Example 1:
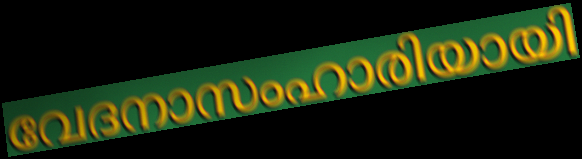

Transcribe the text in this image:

വേദനാസംഹാരിയായി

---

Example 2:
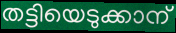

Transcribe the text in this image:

തട്ടിയെടുക്കാന്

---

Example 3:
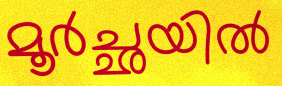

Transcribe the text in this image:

മൂർച്ഛയിൽ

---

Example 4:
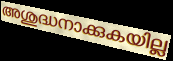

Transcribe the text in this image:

അശുദ്ധനാക്കുകയില്ല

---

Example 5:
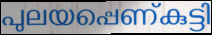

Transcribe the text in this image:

പുലയപ്പെണ്കുട്ടി